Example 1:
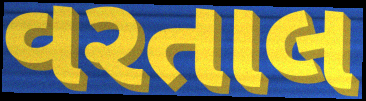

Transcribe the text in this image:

વરતાલ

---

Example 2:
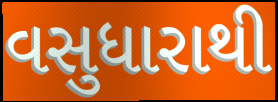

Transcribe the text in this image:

વસુધારાથી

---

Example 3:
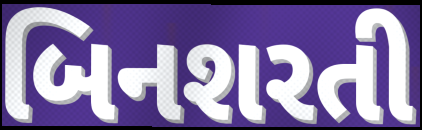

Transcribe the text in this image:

બિનશરતી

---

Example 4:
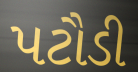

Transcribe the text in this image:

પટૌડી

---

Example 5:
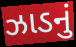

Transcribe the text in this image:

ઝાડનું